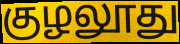
குழலூது